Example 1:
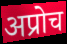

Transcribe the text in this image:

अप्रोच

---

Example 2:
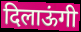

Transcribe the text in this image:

दिलाऊंगी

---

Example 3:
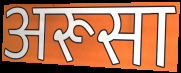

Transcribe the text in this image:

अरूसा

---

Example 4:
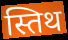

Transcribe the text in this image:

स्तिथ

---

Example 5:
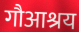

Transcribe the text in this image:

गौआश्रय